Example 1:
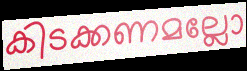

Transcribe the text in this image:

കിടക്കണമല്ലോ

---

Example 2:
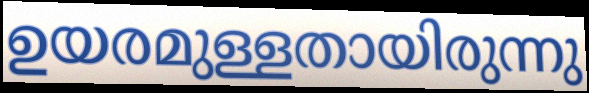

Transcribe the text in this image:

ഉയരമുള്ളതായിരുന്നു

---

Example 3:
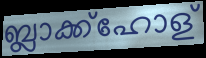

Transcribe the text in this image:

ബ്ലാക്ക്ഹോള്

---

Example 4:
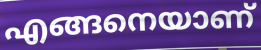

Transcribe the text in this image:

എങ്ങനെയാണ്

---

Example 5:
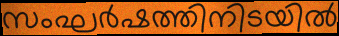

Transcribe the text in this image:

സംഘർഷത്തിനിടയിൽ